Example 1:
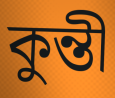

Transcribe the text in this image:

কুন্তী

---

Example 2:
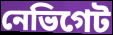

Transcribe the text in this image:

নেভিগেট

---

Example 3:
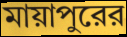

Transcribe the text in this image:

মায়াপুরের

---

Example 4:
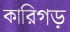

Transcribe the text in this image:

কারিগড়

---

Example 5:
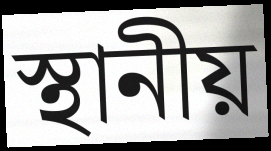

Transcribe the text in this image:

স্থানীয়